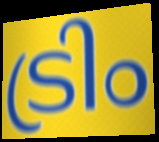
ട്രിം